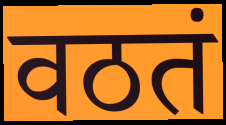
वठतं